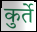
कुर्ते